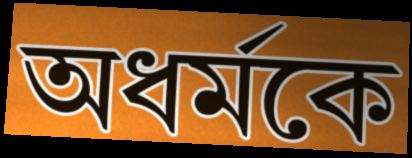
অধর্মকে